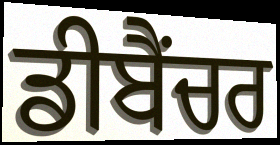
ਡੀਬੈਂਚਰ